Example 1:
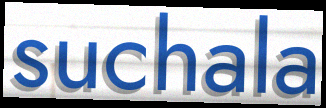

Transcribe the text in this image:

suchala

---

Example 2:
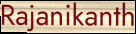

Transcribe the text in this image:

Rajanikanth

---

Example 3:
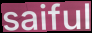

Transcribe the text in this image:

saiful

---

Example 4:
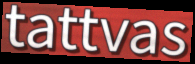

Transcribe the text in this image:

tattvas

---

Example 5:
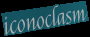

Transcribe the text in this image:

iconoclasm